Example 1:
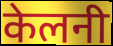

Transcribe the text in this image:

केलनी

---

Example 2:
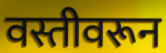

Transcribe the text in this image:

वस्तीवरून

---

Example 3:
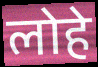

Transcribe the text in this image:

लोहे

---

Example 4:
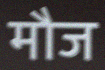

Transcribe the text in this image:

मौज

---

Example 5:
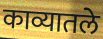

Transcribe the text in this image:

काव्यातले